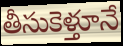
తీసుకెళ్తూనే